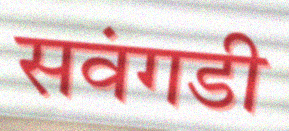
सवंगडी